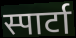
स्पार्टा